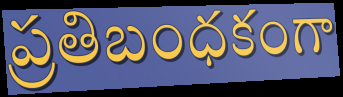
ప్రతిబంధకంగా